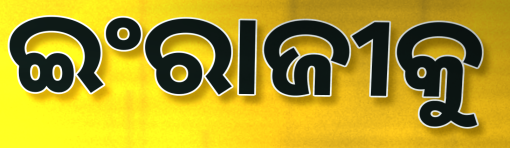
ଇଂରାଜୀକୁ